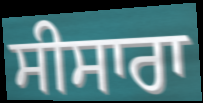
ਸੀਸਾਰਾ